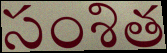
సంశిత